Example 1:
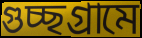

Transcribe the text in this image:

গুচ্ছগ্রামে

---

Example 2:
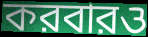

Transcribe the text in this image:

করবারও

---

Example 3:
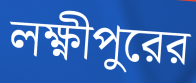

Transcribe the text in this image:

লক্ষ্ণীপুরের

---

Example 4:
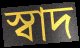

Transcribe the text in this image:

স্বাদ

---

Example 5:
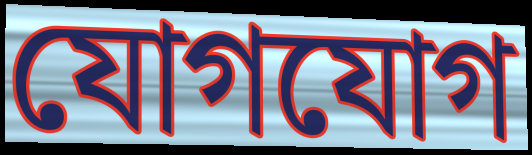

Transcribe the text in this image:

যোগযোগ